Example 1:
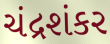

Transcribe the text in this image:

ચંદ્રશંકર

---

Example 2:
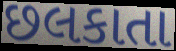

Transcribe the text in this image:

છલકાતા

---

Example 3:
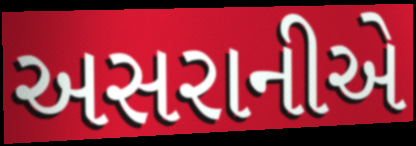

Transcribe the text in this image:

અસરાનીએ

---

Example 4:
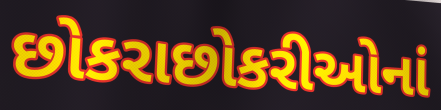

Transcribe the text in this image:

છોકરાછોકરીઓનાં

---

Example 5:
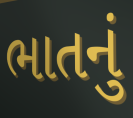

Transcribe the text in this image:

ભાતનું